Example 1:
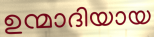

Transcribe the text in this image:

ഉന്മാദിയായ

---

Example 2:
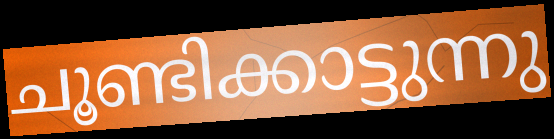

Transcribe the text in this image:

ചൂണ്ടിക്കാട്ടുന്നു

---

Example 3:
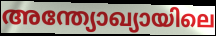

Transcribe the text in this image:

അന്ത്യോഖ്യായിലെ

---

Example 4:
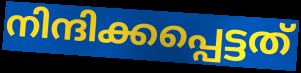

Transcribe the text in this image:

നിന്ദിക്കപ്പെട്ടത്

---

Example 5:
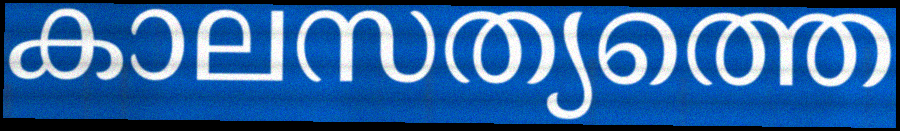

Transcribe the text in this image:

കാലസത്യത്തെ